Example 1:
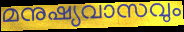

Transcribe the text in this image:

മനുഷ്യവാസവും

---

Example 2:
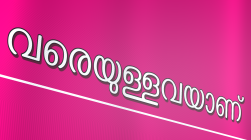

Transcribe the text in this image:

വരെയുള്ളവയാണ്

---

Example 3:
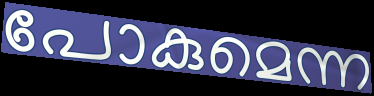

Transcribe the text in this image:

പോകുമെന്ന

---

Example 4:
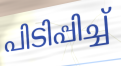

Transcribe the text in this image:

പിടിപ്പിച്ച്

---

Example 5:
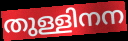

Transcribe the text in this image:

തുള്ളിനന